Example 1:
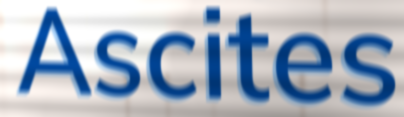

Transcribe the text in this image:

Ascites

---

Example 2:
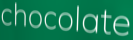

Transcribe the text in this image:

chocolate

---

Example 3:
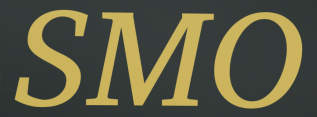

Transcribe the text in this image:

SMO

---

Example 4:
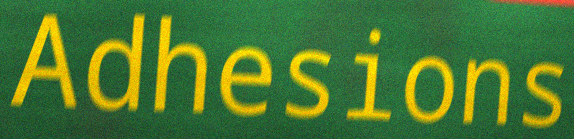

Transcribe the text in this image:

Adhesions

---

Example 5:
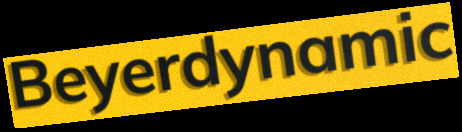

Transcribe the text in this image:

Beyerdynamic